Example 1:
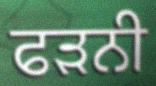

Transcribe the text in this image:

ਫੜਨੀ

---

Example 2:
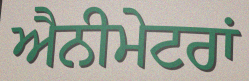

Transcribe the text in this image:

ਐਨੀਮੇਟਰਾਂ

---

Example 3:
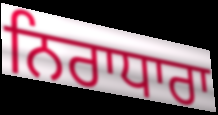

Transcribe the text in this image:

ਨਿਰਾਧਾਰਾ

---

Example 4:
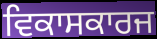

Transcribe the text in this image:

ਵਿਕਾਸਕਾਰਜ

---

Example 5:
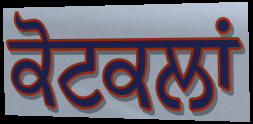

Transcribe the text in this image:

ਕੋਟਕਲਾਂ